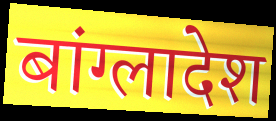
बांग्लादेश